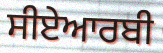
ਸੀਏਆਰਬੀ